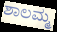
ಶಾಲಮ್ಮ